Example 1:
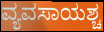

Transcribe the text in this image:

ವ್ಯವಸಾಯಶ್ಚ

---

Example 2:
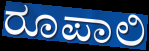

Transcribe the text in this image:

ರೂಪಾಲಿ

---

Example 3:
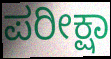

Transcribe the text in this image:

ಪರೀಕ್ಷಾ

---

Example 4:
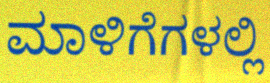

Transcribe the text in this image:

ಮಾಳಿಗೆಗಳಲ್ಲಿ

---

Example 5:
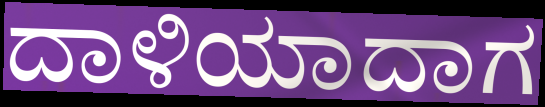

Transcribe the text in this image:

ದಾಳಿಯಾದಾಗ